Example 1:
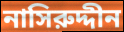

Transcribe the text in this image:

নাসিরুদ্দীন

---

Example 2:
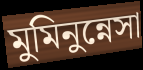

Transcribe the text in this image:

মুমিনুন্নেসা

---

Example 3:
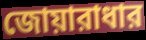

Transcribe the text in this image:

জোয়ারাধার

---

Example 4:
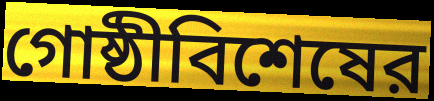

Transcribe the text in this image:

গোষ্ঠীবিশেষের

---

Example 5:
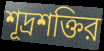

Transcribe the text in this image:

শূদ্রশক্তির